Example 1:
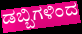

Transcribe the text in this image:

ಡಬ್ಬಿಗಳಿಂದ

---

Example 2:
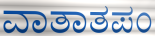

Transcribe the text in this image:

ವಾತಾತಪಂ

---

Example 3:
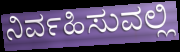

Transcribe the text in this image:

ನಿರ್ವಹಿಸುವಲ್ಲಿ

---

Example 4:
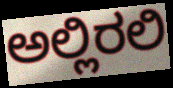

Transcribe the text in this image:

ಅಲ್ಲಿರಲಿ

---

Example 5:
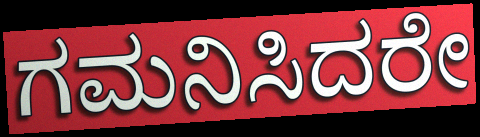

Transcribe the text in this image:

ಗಮನಿಸಿದರೇ